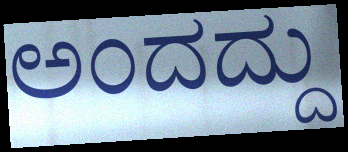
ಅಂದದ್ದು